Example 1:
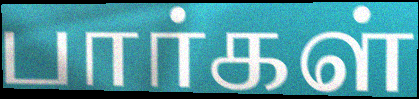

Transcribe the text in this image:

பார்கள்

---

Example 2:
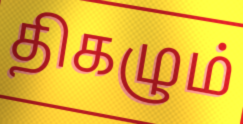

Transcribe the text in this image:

திகழும்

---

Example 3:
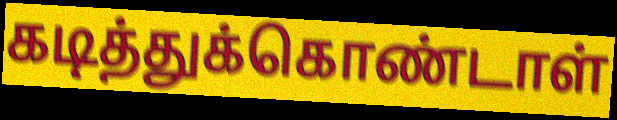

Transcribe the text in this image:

கடித்துக்கொண்டாள்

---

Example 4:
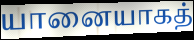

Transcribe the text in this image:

யானையாகத்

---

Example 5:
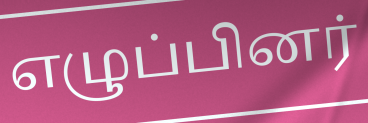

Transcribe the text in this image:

எழுப்பினர்